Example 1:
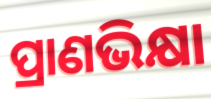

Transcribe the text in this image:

ପ୍ରାଣଭିକ୍ଷା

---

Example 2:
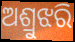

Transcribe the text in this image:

ଅଶ୍ରୁଝରି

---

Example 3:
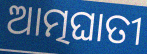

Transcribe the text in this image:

ଆତ୍ମଘାତୀ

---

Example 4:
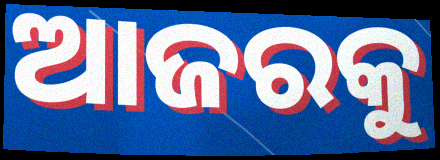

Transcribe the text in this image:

ଆଜରକୁ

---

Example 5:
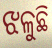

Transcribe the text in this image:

ଝଳୁଛି